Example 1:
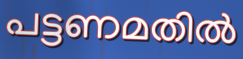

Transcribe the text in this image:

പട്ടണമതിൽ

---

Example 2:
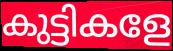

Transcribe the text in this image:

കുട്ടികളേ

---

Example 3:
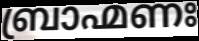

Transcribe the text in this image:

ബ്രാഹ്മണഃ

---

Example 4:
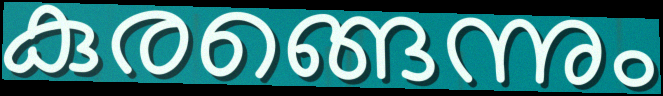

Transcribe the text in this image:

കുരങ്ങെന്നും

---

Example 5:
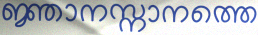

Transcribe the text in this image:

ജ്ഞാനസ്നാനത്തെ